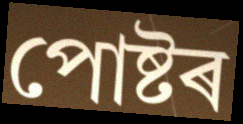
পোষ্টৰ